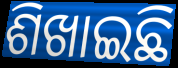
ଶିଖାଇଛି